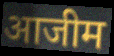
आजीम